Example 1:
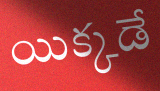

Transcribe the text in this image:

యిక్కడే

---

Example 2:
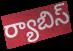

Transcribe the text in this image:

ర్యాబిస్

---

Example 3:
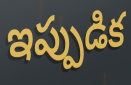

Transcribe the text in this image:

ఇప్పుడిక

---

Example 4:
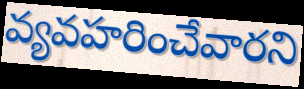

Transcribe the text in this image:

వ్యవహరించేవారని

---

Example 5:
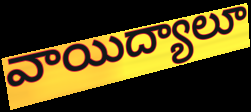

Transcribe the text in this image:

వాయిద్యాలూ